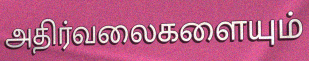
அதிர்வலைகளையும்